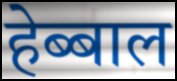
हेब्बाल